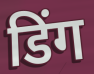
डिंग